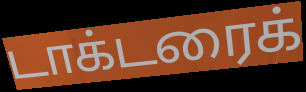
டாக்டரைக்